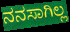
ನನಸಾಗಿಲ್ಲ